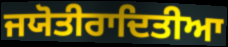
ਜਯੋਤੀਰਾਦਿਤੀਆ